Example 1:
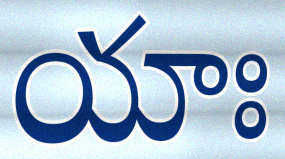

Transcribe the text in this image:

యాః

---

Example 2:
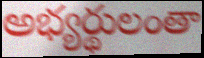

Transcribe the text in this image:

అభ్యర్థులంతా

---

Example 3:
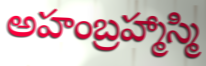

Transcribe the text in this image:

అహంబ్రహ్మాస్మి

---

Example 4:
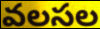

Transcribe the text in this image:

వలసల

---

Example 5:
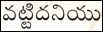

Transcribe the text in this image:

వట్టిదనియు